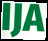
IJA